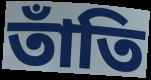
তাঁতি